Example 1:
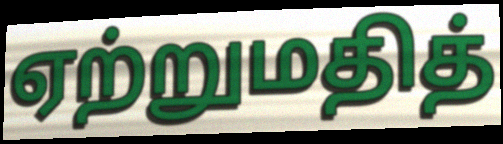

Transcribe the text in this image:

ஏற்றுமதித்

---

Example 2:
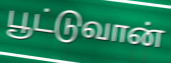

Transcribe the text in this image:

பூட்டுவான்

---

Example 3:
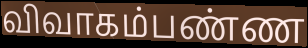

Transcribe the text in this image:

விவாகம்பண்ண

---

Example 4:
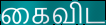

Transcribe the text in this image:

கைவிட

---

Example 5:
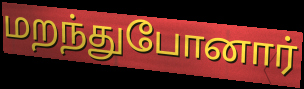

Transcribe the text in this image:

மறந்துபோனார்